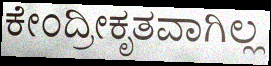
ಕೇಂದ್ರೀಕೃತವಾಗಿಲ್ಲ